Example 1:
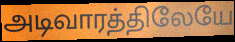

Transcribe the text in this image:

அடிவாரத்திலேயே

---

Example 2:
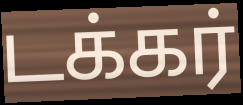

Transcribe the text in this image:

டக்கர்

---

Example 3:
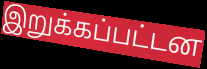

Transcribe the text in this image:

இறுக்கப்பட்டன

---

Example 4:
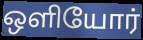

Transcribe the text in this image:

ஒளியோர்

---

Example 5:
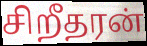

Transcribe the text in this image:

சிறீதரன்